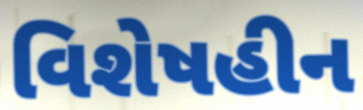
વિશેષહીન